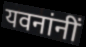
यवनांनीं